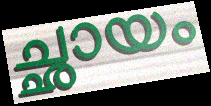
ച്ഛായം